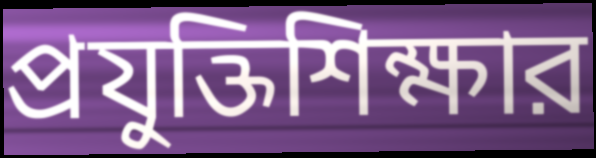
প্রযুক্তিশিক্ষার